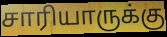
சாரியாருக்கு